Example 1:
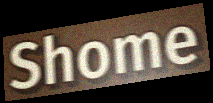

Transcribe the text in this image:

Shome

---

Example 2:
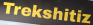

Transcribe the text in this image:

Trekshitiz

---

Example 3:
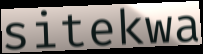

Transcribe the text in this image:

sitekwa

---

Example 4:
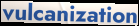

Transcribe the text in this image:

vulcanization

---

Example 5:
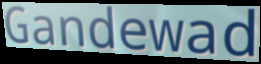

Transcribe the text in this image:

Gandewad